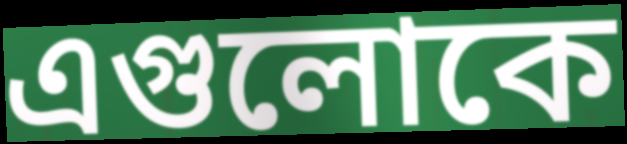
এগুলোকে